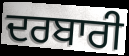
ਦਰਬਾਰੀ